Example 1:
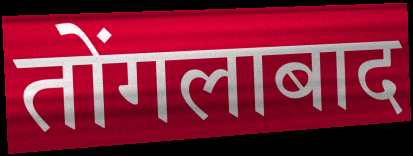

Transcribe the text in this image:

तोंगलाबाद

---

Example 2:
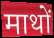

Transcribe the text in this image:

माथों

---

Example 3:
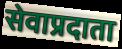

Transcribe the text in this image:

सेवाप्रदाता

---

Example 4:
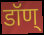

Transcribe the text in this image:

डॉण्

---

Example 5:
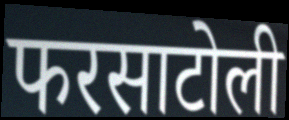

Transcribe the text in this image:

फरसाटोली